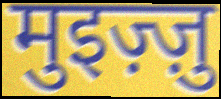
मुइज़्ज़ु